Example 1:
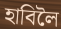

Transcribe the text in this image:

হাবিলৈ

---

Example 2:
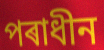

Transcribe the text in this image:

পৰাধীন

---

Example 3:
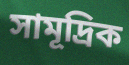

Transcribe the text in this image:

সামূদ্ৰিক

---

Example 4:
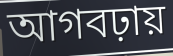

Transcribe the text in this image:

আগবঢ়ায়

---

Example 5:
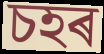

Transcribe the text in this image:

চহৰ